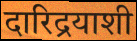
दारिद्रयाशी